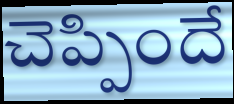
చెప్పిందే